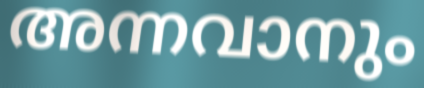
അന്നവാനും